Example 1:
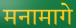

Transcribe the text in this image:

मनामागे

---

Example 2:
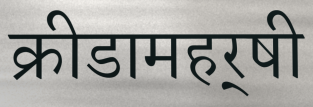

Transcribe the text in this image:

क्रीडामहर्षी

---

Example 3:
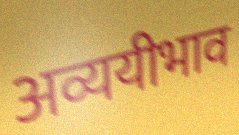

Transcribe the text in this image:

अव्ययीभाव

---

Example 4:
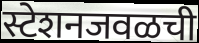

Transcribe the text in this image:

स्टेशनजवळची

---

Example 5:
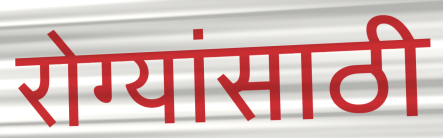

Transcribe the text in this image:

रोग्यांसाठी